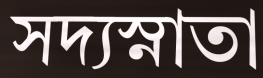
সদ্যস্নাতা